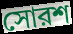
সোরশ